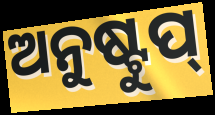
ଅନୁଷ୍ଟୁପ୍